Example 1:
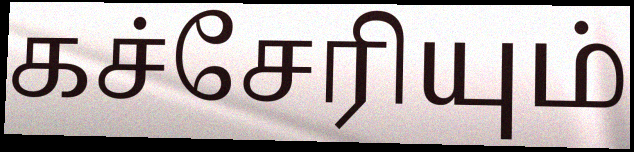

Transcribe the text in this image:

கச்சேரியும்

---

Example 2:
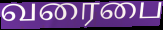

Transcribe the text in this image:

வரைபை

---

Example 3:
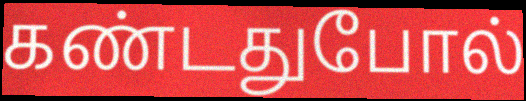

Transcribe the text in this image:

கண்டதுபோல்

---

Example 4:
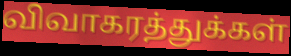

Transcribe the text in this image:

விவாகரத்துக்கள்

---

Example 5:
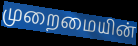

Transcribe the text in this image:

முறைமையின்